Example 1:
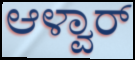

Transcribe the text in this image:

ಆಳ್ವಾರ್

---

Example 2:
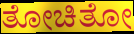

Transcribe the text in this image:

ತೋಚಿತೋ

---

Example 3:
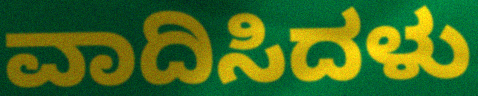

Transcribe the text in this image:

ವಾದಿಸಿದಳು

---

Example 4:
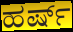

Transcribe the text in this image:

ಹರ್ಷ್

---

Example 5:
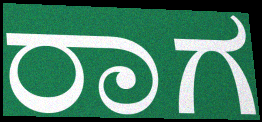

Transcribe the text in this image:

ರಾಗ